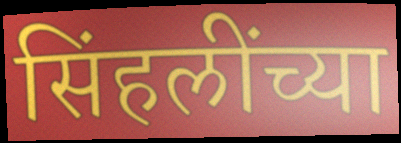
सिंहलींच्या